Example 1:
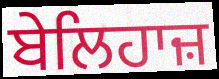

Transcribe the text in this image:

ਬੇਲਿਹਾਜ਼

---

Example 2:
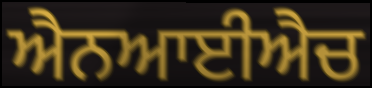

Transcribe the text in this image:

ਐਨਆਈਐਚ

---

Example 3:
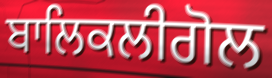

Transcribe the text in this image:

ਬਾਲਿਕਲੀਗੋਲ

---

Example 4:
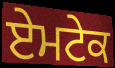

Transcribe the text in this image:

ਏਮਟੇਕ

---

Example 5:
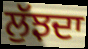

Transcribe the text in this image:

ਲੁੱਝਦਾ